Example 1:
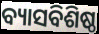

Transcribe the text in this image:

ବ୍ୟାସବିଶିଷ୍ଠ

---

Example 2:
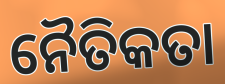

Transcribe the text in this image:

ନୈତିକତା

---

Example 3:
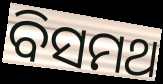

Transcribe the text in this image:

ବିସମଥ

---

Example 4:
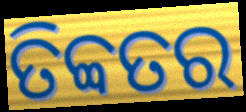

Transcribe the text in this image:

ତିବ୍ବତର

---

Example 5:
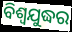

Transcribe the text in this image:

ବିଶ୍ୱଯୁଦ୍ଧର